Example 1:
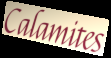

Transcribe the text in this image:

Calamites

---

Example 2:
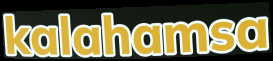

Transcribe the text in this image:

kalahamsa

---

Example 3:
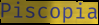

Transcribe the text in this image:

Piscopia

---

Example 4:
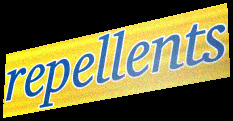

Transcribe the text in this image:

repellents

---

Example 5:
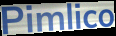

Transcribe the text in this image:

Pimlico